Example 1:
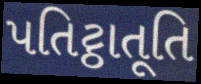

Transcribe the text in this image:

પતિટ્ઠાતૂતિ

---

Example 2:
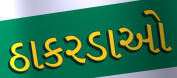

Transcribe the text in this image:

ઠાકરડાઓ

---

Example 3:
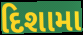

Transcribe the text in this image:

દિશામા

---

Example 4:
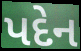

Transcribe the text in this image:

પદેન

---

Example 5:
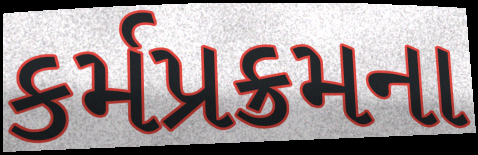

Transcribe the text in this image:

કર્મપ્રક્રમના